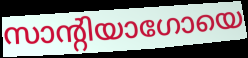
സാന്റിയാഗോയെ